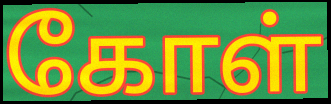
கோள்